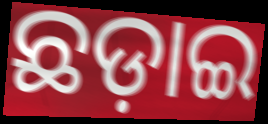
ଛଡ଼ାଇ